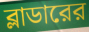
ব্লাডারের